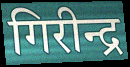
गिरीन्द्र